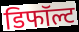
डिफॉल्ट